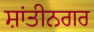
ਸ਼ਾਂਤੀਨਗਰ